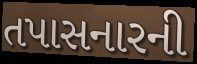
તપાસનારની